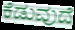
ಕೆಡುವುದೆ